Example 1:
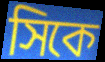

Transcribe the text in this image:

সিকে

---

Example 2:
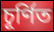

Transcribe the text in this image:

চূর্ণিত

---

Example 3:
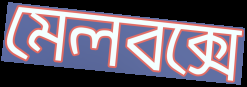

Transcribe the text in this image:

মেলবক্সে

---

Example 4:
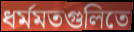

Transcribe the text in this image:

ধর্মমতগুলিতে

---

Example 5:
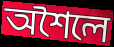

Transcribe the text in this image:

অশৈলে